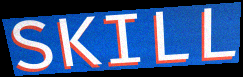
SKILL